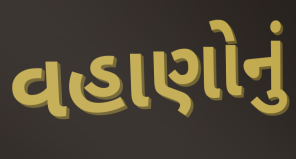
વહાણોનું